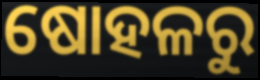
ଷୋହଳରୁ